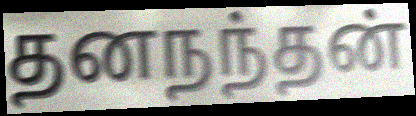
தனநந்தன்